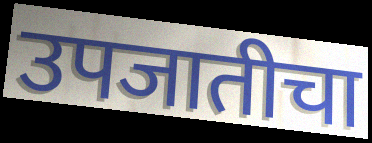
उपजातीचा